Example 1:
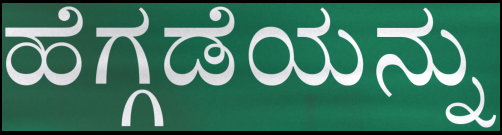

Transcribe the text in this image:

ಹೆಗ್ಗಡೆಯನ್ನು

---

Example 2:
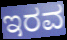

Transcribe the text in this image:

ಇರವ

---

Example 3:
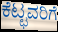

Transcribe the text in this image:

ಕೆಟ್ಟವರಿಗೆ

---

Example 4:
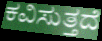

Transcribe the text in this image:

ಕವಿಸುತ್ತದೆ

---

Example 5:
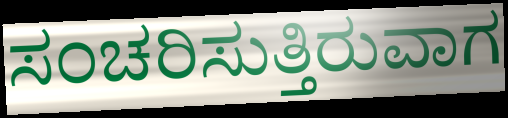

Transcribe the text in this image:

ಸಂಚರಿಸುತ್ತಿರುವಾಗ